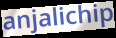
anjalichip